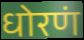
धोरणं